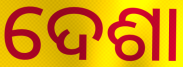
ଦେଶା